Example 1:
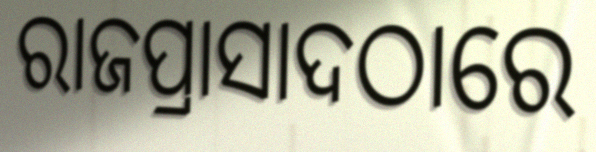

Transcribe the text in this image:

ରାଜପ୍ରାସାଦଠାରେ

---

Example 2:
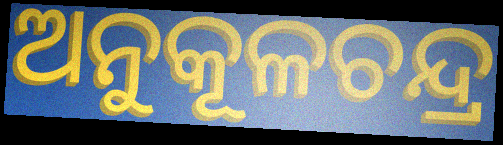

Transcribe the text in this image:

ଅନୁକୂଳଚନ୍ଦ୍ର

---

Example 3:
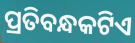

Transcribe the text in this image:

ପ୍ରତିବନ୍ଧକଟିଏ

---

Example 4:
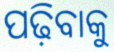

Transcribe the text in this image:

ପଢ଼ିବାକୁ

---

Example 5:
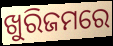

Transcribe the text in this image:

ଖୁରିଜମରେ